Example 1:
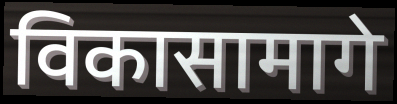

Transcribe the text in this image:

विकासामागे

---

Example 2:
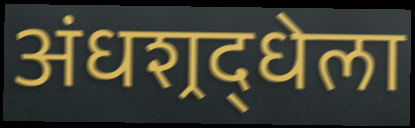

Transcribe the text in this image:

अंधश्रद्धेला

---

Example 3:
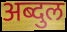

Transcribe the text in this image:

अब्दुल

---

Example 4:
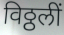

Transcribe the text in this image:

विठ्ठलीं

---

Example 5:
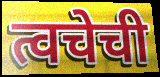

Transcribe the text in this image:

त्वचेची